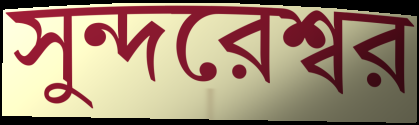
সুন্দরেশ্বর